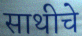
साथीचे